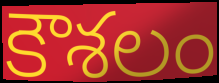
కౌశలం